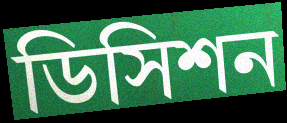
ডিসিশন